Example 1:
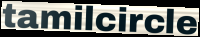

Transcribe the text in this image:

tamilcircle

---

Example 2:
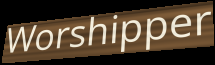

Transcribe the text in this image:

Worshipper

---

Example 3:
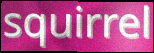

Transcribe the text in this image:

squirrel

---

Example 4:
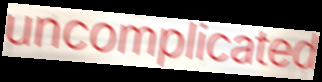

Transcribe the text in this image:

uncomplicated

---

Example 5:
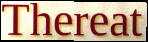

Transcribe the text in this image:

Thereat